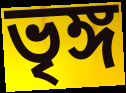
ভৃঙ্গ